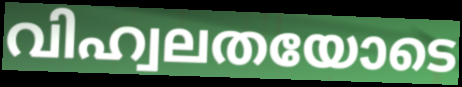
വിഹ്വലതയോടെ